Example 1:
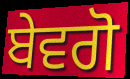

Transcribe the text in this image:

ਬੇਵਗੋ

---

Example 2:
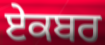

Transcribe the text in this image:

ਏਕਬਰ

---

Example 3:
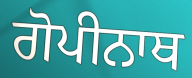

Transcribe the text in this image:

ਗੋਪੀਨਾਥ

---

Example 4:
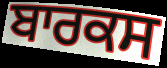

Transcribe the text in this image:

ਬਾਰਕਸ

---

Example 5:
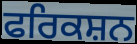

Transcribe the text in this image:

ਫਰਿਕਸ਼ਨ